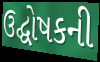
ઉદ્ઘોષકની